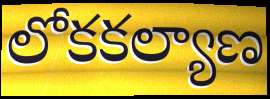
లోకకల్యాణ